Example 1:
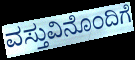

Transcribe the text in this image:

ವಸ್ತುವಿನೊಂದಿಗೆ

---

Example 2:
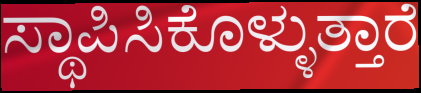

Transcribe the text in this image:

ಸ್ಥಾಪಿಸಿಕೊಳ್ಳುತ್ತಾರೆ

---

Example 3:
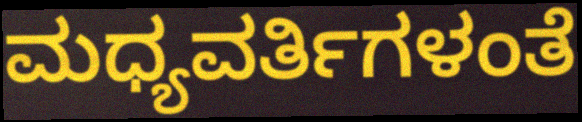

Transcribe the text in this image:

ಮಧ್ಯವರ್ತಿಗಳಂತೆ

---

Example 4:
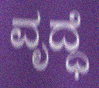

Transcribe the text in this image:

ವೃದ್ಧೆ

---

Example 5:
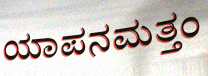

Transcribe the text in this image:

ಯಾಪನಮತ್ತಂ